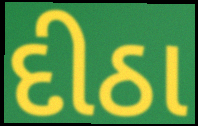
દીઠા